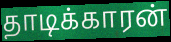
தாடிக்காரன்